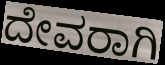
ದೇವರಾಗಿ